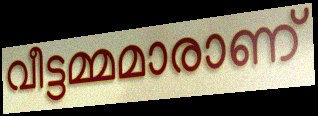
വീട്ടമ്മമാരാണ്